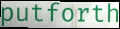
putforth